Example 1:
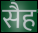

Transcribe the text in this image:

सैह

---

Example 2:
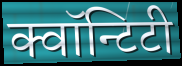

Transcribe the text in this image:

क्वॉन्टिटी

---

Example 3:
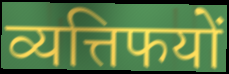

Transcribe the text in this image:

व्यत्तिफयों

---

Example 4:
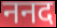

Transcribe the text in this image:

ननद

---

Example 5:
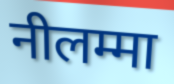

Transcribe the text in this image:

नीलम्मा